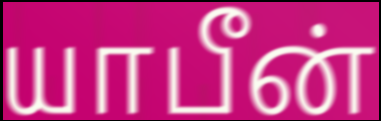
யாபீன்